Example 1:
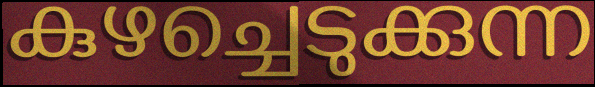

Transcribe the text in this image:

കുഴച്ചെടുക്കുന്ന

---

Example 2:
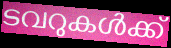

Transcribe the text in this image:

ടവറുകൾക്ക്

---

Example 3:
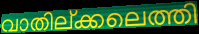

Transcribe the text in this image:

വാതില്ക്കലെത്തി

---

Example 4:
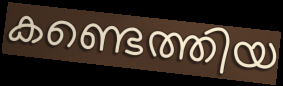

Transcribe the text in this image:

കണ്ടെത്തിയ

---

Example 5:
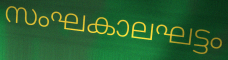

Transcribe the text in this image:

സംഘകാലഘട്ടം